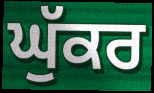
ਘੁੱਕਰ